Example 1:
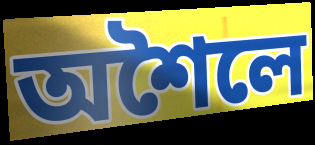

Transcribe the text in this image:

অশৈলে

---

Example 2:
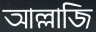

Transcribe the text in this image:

আল্লাজি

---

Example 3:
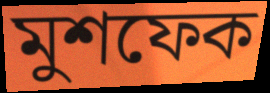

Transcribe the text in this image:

মুশফেক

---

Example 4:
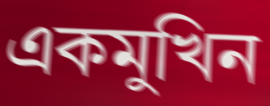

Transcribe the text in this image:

একমুখিন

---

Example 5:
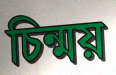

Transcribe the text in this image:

চিন্ময়